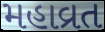
મહાવ્રત